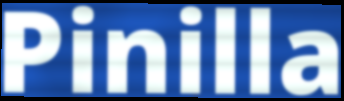
Pinilla